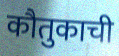
कौतुकाची